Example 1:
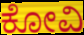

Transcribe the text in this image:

ಕೋವಿ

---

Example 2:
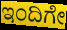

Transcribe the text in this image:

ಇಂದಿಗೇ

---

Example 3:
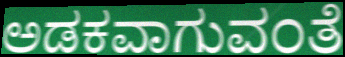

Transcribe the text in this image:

ಅಡಕವಾಗುವಂತೆ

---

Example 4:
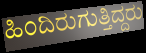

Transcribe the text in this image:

ಹಿಂದಿರುಗುತ್ತಿದ್ದರು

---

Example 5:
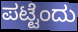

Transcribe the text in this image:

ಪಟ್ಟೆಂದು